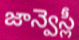
జాన్వెస్లీ